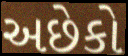
અછેકો